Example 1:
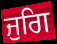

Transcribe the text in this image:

ਜੁਗਿ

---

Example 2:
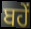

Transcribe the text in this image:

ਬਹੇਂ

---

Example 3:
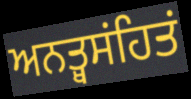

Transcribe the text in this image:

ਅਨਤ੍ਥਸਂਹਿਤਂ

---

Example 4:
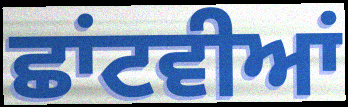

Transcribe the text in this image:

ਛਾਂਟਵੀਆਂ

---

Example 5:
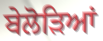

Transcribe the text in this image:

ਬੇਲੋੜਿਆਂ